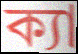
ক্যা